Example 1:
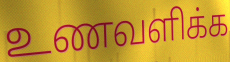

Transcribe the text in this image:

உணவளிக்க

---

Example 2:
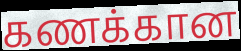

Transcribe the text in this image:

கணக்கான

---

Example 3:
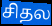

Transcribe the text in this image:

சிதல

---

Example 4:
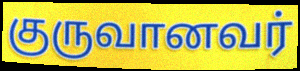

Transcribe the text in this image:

குருவானவர்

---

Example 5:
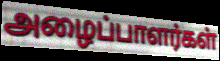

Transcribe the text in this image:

அழைப்பாளர்கள்